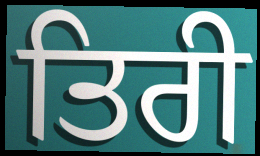
ਤਿਰੀ